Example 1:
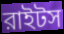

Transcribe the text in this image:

রাইটস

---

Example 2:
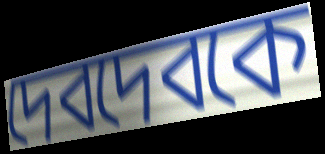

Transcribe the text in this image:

দেবদেবকে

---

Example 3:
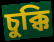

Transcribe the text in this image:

চুক্কি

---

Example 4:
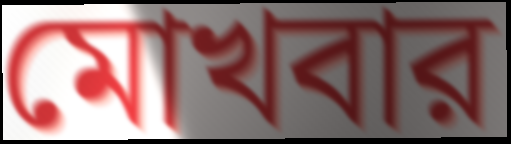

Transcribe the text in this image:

মোখবার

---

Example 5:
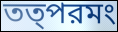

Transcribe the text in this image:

তত্পরমং